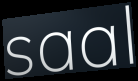
saal